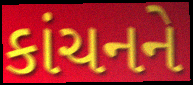
કાંચનને